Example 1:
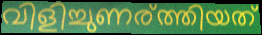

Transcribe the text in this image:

വിളിച്ചുണര്ത്തിയത്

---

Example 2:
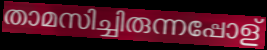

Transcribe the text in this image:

താമസിച്ചിരുന്നപ്പോള്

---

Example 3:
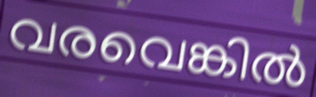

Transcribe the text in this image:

വരവെങ്കിൽ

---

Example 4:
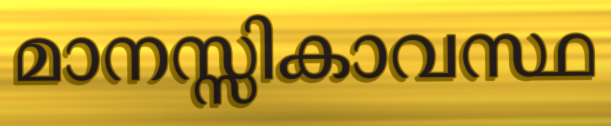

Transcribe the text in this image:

മാനസ്സികാവസ്ഥ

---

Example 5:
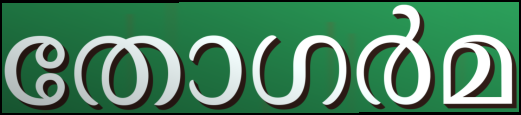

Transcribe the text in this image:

തോഗർമ